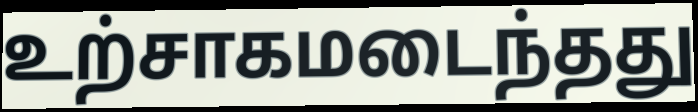
உற்சாகமடைந்தது